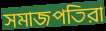
সমাজপতিরা